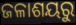
ଜଳାଶୟରୁ